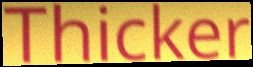
Thicker